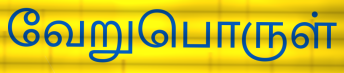
வேறுபொருள்